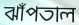
ঝাঁপতাল